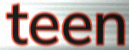
teen